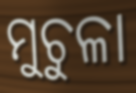
ମୁଚୁଳା